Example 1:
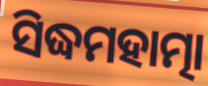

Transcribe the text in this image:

ସିଦ୍ଧମହାତ୍ମା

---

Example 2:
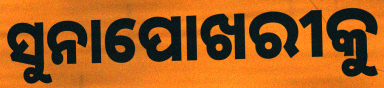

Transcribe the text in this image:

ସୁନାପୋଖରୀକୁ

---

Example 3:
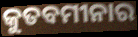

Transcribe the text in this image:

କୁତବମୀନାର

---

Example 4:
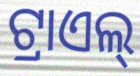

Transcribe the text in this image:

ଟ୍ରାଏଲ୍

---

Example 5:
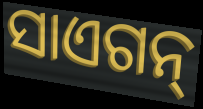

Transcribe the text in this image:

ସାଏଗନ୍